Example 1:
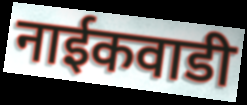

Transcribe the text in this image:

नाईकवाडी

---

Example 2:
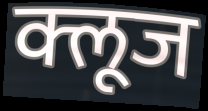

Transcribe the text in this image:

क्लूज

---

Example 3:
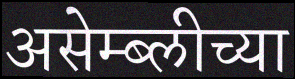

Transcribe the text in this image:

असेम्ब्लीच्या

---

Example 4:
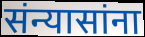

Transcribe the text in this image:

संन्यासांना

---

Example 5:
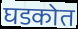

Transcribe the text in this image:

घडकोत